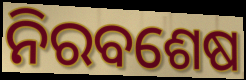
ନିରବଶେଷ